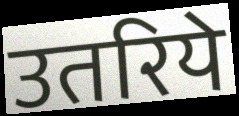
उतरिये